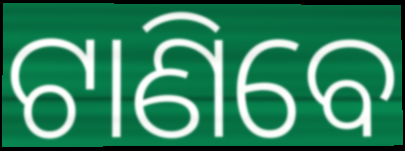
ଟାଣିବେ